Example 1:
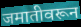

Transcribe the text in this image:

जमातीवरून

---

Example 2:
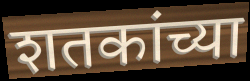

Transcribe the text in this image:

शतकांच्या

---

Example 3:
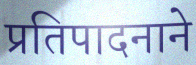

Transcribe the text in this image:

प्रतिपादनाने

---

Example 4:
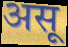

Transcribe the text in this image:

असू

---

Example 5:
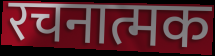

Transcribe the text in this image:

रचनात्मक